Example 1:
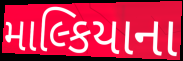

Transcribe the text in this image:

માલ્કિયાના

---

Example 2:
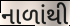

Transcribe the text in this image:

નાળાંથી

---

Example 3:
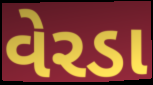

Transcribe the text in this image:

વેરડા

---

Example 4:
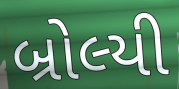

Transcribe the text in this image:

બ્રોલ્યી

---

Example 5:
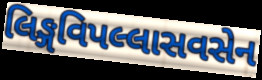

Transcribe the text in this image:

લિઙ્ગવિપલ્લાસવસેન